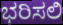
ಭರಿಸಲಿ